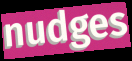
nudges